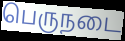
பெருநடை